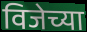
विजेच्या